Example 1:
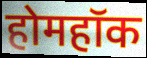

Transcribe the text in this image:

होमहॉक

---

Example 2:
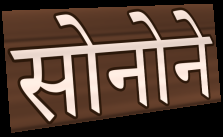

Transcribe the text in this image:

सोनोने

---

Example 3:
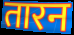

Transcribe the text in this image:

तारन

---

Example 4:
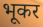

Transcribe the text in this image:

भूकर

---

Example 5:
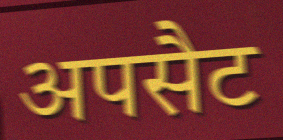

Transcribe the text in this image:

अपसैट